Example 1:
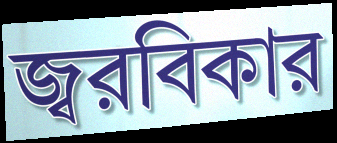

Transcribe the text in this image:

জ্বরবিকার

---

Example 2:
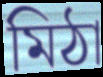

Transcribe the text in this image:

মিঠা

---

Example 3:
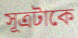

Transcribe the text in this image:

সূত্রটাকে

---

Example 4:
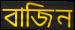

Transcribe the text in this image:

বাজিন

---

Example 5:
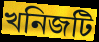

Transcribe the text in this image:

খনিজটি